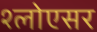
श्लोएसर